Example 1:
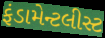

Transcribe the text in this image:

ફંડામેન્ટલીસ્ટ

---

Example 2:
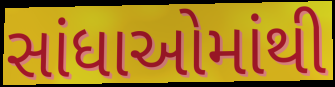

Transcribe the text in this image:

સાંધાઓમાંથી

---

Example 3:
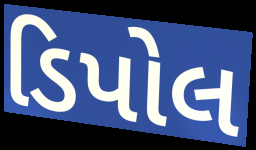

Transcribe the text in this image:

ડિપોલ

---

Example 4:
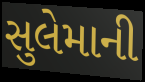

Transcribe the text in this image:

સુલેમાની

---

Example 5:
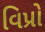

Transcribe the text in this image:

વિપ્રો